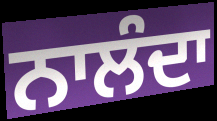
ਨਾਲੰਦਾ